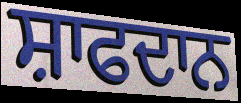
ਸ਼ਾਫਦਾਨ